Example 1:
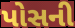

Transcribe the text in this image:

પોસની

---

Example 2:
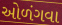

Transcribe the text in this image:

ઓળંગવા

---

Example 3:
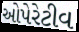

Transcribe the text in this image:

ઓપેરેટીવ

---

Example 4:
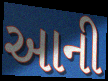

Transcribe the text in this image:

આની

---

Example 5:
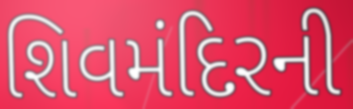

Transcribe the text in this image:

શિવમંદિરની